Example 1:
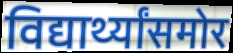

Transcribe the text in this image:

विद्यार्थ्यांसमोर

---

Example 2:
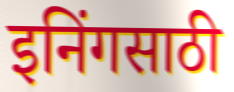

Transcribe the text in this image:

इनिंगसाठी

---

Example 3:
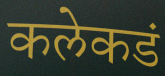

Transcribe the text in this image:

कलेकडं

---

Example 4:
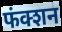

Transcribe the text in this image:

फंक्शन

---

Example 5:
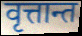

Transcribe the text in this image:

वृत्तान्त